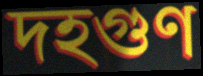
দহগুণ